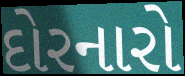
દોરનારો